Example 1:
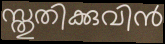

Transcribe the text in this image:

സ്തുതിക്കുവിൻ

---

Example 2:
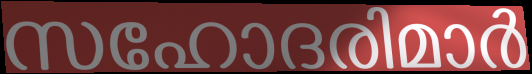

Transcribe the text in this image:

സഹോദരിമാർ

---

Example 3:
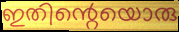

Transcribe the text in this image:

ഇതിന്റെയൊരു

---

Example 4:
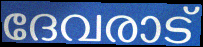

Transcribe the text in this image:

ദേവരാട്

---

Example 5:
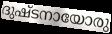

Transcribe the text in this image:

ദുഷ്ടനായോരു